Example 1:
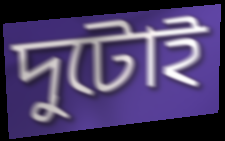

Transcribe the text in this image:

দুটোই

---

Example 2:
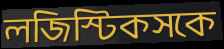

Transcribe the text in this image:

লজিস্টিকসকে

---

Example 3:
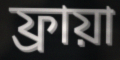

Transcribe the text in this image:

ফ্রায়া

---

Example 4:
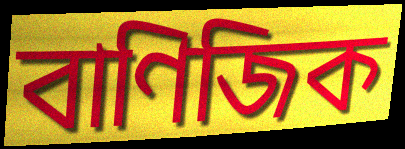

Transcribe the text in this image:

বাণিজিক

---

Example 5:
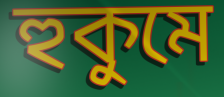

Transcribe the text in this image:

হুকুমে